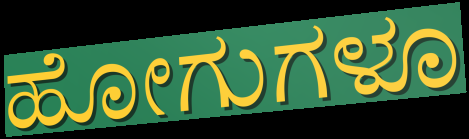
ಹೋಗುಗಳೂ